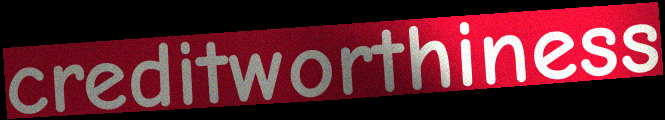
creditworthiness